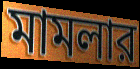
মামলার